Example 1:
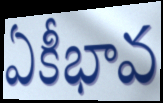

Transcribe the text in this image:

ఏకీభావ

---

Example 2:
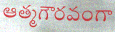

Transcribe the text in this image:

ఆత్మగౌరవంగా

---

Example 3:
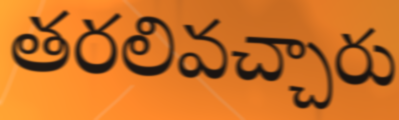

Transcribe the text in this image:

తరలివచ్చారు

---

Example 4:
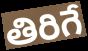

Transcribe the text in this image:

తిరిగే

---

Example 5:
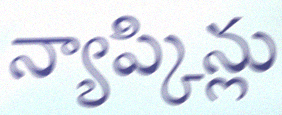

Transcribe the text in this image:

న్యాప్కిన్లు